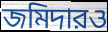
জমিদারও